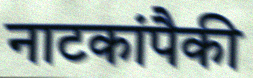
नाटकांपैकी